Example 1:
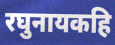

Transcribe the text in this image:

रघुनायकहि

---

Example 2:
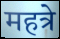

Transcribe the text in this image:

महत्रे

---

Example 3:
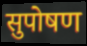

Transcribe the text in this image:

सुपोषण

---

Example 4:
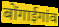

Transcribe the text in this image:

बोंगाईगांव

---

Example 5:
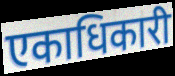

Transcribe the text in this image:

एकाधिकारी